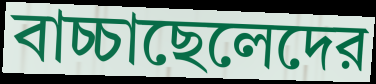
বাচ্চাছেলেদের